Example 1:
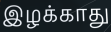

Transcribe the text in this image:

இழக்காது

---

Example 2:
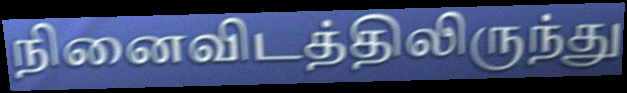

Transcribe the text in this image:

நினைவிடத்திலிருந்து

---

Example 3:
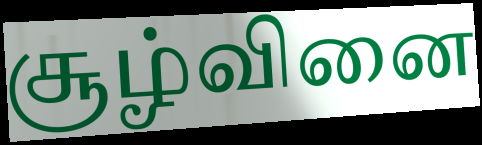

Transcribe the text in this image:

சூழ்வினை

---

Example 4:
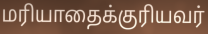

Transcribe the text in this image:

மரியாதைக்குரியவர்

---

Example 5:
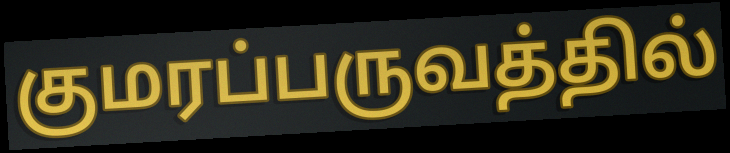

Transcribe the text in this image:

குமரப்பருவத்தில்